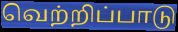
வெற்றிப்பாடு